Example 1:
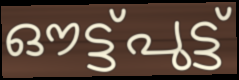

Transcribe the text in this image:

ഔട്ട്പുട്ട്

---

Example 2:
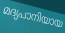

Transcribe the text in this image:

മദ്യപാനിയായ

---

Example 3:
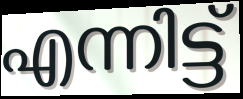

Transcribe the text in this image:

എന്നിട്ട്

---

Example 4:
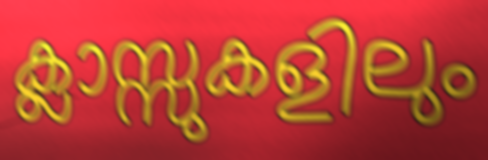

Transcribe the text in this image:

ക്ലാസ്സുകളിലും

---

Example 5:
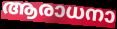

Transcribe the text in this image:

ആരാധനാ